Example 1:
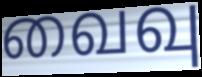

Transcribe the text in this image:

வைவு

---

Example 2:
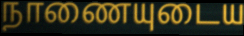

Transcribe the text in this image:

நாணையுடைய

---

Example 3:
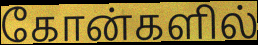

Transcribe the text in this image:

கோன்களில்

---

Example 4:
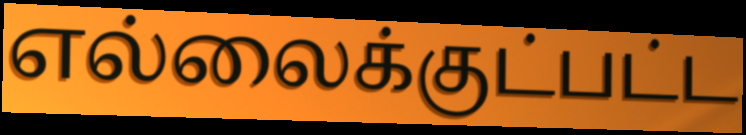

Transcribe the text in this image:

எல்லைக்குட்பட்ட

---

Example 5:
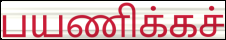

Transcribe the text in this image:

பயணிக்கச்